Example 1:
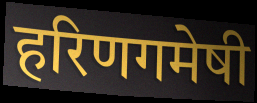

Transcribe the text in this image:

हरिणगमेषी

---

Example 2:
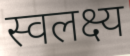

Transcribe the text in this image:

स्वलक्ष्य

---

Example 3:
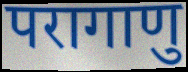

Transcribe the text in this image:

परागाणु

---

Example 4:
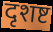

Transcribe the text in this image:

दृशष्ट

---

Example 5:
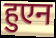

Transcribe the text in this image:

हुएन